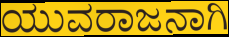
ಯುವರಾಜನಾಗಿ